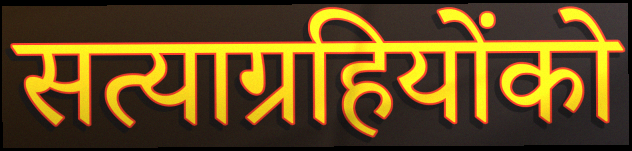
सत्याग्रहियोंको